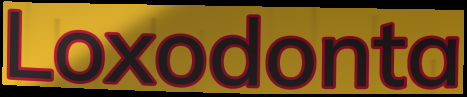
Loxodonta